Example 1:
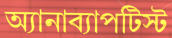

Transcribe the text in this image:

অ্যানাব্যাপটিস্ট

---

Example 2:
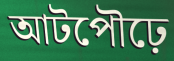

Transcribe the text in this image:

আটপৌঢ়ে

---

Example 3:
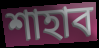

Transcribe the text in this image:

শাহাব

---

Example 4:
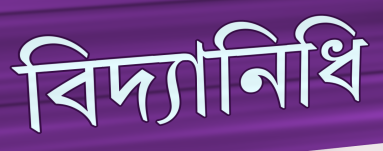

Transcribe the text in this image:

বিদ্যানিধি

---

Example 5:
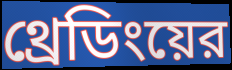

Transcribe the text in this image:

থ্রেডিংয়ের